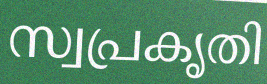
സ്വപ്രകൃതി